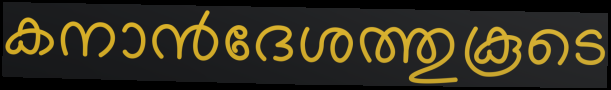
കനാൻദേശത്തുകൂടെ